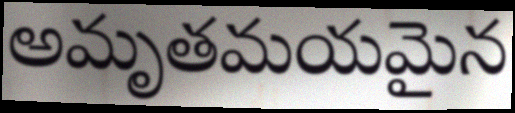
అమృతమయమైన